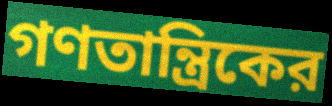
গণতান্ত্রিকের